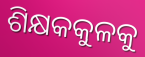
ଶିକ୍ଷକକୁଳକୁ